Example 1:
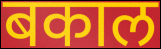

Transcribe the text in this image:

बकाल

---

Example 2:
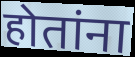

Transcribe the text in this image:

होतांना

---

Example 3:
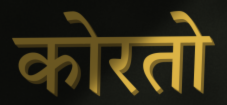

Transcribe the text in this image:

कोरतो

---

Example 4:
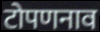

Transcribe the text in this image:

टोपणनाव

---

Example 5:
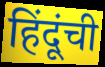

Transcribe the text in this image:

हिंदूंची